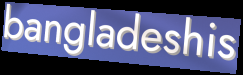
bangladeshis